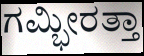
ಗಮ್ಭೀರತ್ತಾ